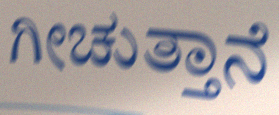
ಗೀಚುತ್ತಾನೆ